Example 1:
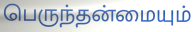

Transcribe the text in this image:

பெருந்தன்மையும்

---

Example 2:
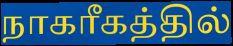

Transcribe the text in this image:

நாகரீகத்தில்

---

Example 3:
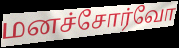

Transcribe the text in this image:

மனச்சோர்வோ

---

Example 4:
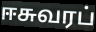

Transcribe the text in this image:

ஈசுவரப்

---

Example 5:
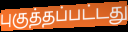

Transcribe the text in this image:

புகுத்தப்பட்டது